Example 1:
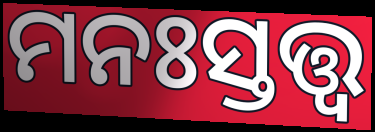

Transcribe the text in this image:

ମନଃସ୍ତତ୍ତ୍ଵ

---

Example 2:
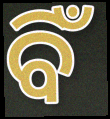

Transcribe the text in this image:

ବିଁ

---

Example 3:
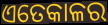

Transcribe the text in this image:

ଏତେକାଳର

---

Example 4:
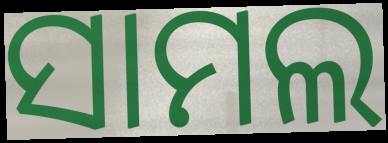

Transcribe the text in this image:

ସାମଲ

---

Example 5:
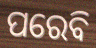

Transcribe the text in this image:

ପରେବି